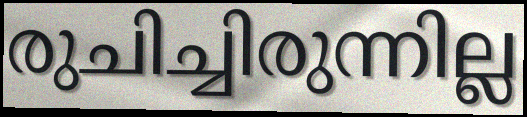
രുചിച്ചിരുന്നില്ല